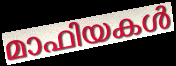
മാഫിയകൾ